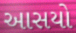
આસયો